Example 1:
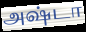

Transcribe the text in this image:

அஷ்டா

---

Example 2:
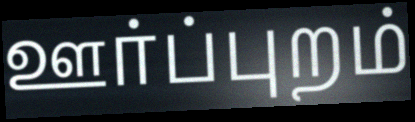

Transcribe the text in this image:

ஊர்ப்புறம்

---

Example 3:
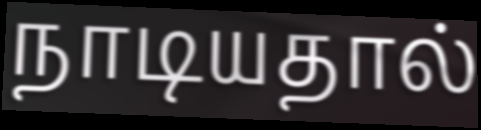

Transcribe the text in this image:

நாடியதால்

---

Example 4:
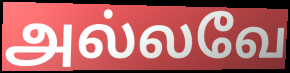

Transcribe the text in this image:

அல்லவே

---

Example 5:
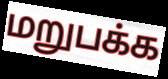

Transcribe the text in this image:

மறுபக்க